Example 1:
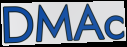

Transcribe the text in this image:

DMAc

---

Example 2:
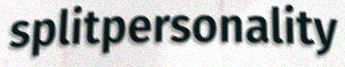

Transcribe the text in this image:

splitpersonality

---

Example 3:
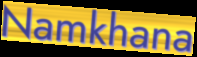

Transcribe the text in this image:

Namkhana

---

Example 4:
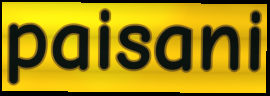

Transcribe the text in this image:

paisani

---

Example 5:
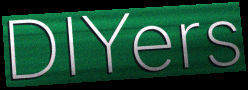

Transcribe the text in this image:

DIYers